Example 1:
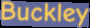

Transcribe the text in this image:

Buckley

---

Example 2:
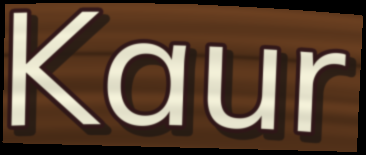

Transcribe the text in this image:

Kaur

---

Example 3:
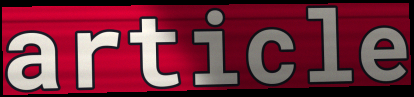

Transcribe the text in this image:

article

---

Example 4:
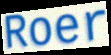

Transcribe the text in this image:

Roer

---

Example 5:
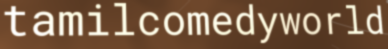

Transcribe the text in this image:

tamilcomedyworld